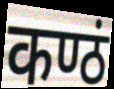
कण्ठं